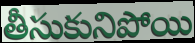
తీసుకునిపోయి